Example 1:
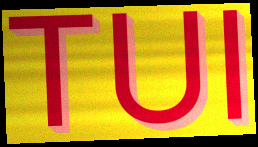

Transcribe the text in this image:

TUI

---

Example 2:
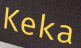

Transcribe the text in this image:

Keka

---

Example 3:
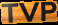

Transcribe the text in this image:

TVP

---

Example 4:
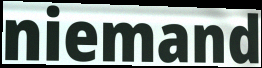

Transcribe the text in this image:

niemand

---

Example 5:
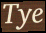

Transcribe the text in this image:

Tye